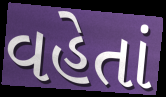
વહેતાં